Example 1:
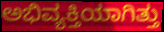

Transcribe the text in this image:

ಅಭಿವ್ಯಕ್ತಿಯಾಗಿತ್ತು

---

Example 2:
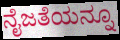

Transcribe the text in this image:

ನೈಜತೆಯನ್ನೂ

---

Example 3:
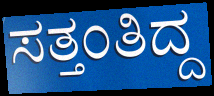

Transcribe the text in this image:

ಸತ್ತಂತಿದ್ದ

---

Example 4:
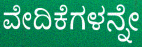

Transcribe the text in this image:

ವೇದಿಕೆಗಳನ್ನೇ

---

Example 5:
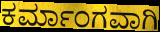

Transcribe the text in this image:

ಕರ್ಮಾಂಗವಾಗಿ